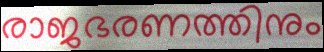
രാജഭരണത്തിനും